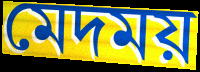
মেদময়